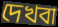
দেখবা